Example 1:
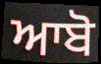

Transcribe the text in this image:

ਆਬੋ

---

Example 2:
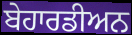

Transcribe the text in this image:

ਬੇਹਾਰਡੀਅਨ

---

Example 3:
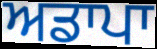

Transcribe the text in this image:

ਅਡਾਪਾ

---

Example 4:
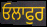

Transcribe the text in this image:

ਓਲਾਫੁਰ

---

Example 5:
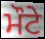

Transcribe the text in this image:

ਮੌਟੇ